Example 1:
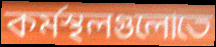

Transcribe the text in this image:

কর্মস্থলগুলোতে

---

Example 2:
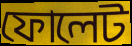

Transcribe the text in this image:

ফোলেট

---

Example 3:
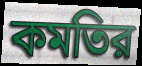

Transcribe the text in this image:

কমতির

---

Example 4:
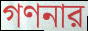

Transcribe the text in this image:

গণনার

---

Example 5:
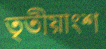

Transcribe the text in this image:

তৃতীয়াংশ